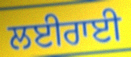
ਲਈਰਾਈ